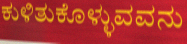
ಕುಳಿತುಕೊಳ್ಳುವವನು